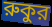
রুকুর